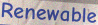
Renewable